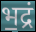
भ॒द्रं